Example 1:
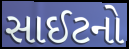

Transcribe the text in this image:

સાઈટનો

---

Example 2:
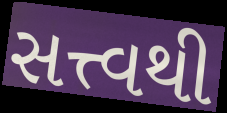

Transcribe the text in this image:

સત્ત્વથી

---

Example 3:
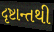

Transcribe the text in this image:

દૃષ્ટાન્તથી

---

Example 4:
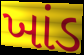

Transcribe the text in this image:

ખાંડ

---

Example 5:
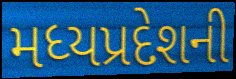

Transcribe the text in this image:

મધ્યપ્રદેશની